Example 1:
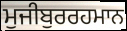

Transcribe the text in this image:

ਮੁਜੀਬੁਰਰਹਮਾਨ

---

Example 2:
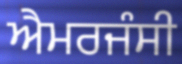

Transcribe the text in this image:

ਐਮਰਜੰਸੀ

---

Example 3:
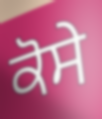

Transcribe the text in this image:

ਕੋਸੇ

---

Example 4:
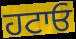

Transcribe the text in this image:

ਹਟਾਓ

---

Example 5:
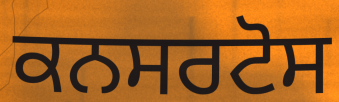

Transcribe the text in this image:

ਕਨਸਰਟੋਸ